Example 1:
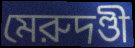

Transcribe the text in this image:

মেরুদণ্ডী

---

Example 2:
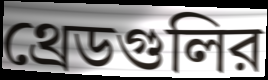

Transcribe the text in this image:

থ্রেডগুলির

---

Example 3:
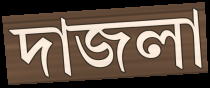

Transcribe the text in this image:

দাজলা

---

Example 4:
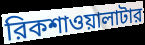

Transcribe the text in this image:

রিকশাওয়ালাটার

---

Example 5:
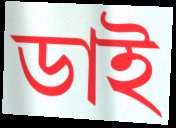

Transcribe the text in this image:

ডাই